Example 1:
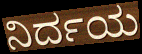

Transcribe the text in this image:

ನಿರ್ದಯ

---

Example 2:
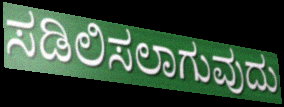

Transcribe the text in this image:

ಸಡಿಲಿಸಲಾಗುವುದು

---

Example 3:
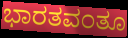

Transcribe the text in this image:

ಭಾರತವಂತೂ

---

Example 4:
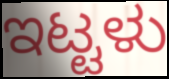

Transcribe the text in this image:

ಇಟ್ಟಳು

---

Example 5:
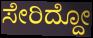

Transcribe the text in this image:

ಸೇರಿದ್ದೋ